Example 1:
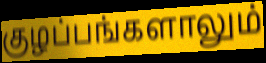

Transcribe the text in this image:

குழப்பங்களாலும்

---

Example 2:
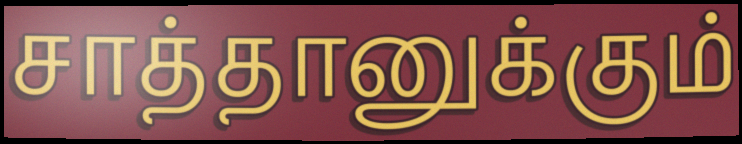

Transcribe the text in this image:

சாத்தானுக்கும்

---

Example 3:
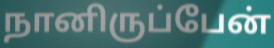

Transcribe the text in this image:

நானிருப்பேன்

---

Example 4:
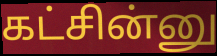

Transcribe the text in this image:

கட்சின்னு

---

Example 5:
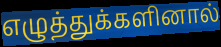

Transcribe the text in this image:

எழுத்துக்களினால்